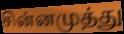
சின்னமுத்து